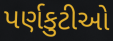
પર્ણકુટીઓ